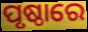
ପୃଷ୍ଠାରେ